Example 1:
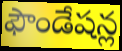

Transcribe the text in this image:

ఫౌండేషన్ల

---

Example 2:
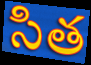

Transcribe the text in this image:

సిత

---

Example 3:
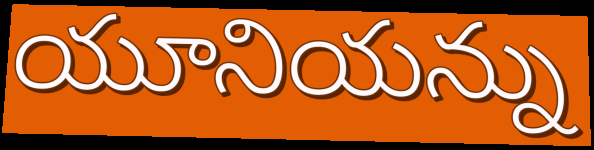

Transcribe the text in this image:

యూనియన్ను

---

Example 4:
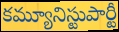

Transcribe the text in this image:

కమ్యూనిస్టుపార్టీ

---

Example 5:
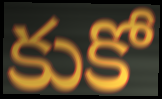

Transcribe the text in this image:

కుకో